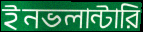
ইনভলান্টারি